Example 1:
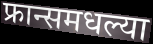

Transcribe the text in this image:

फ्रान्समधल्या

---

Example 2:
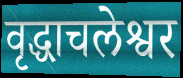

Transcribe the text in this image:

वृद्धाचलेश्वर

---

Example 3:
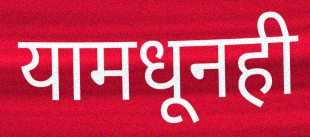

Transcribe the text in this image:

यामधूनही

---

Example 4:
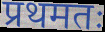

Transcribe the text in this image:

प्रथमतः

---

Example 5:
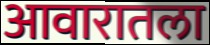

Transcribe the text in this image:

आवारातला